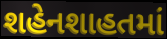
શહેનશાહતમાં